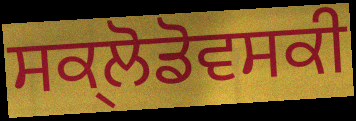
ਸਕ੍ਲੋਡੋਵਸਕੀ